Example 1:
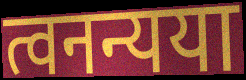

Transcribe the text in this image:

त्वनन्यया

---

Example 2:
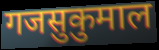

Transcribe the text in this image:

गजसुकुमाल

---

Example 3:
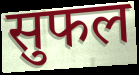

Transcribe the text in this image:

सुफल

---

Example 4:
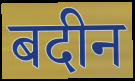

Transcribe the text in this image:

बदीन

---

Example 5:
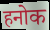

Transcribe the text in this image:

हनोक